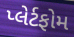
પ્લેર્ટફોમ